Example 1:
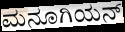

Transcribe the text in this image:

ಮನೂಗಿಯನ್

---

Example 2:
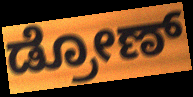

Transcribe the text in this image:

ಡ್ರೋಣ್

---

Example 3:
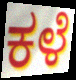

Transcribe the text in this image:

ಕಳೆ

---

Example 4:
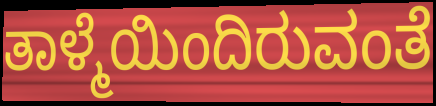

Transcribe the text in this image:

ತಾಳ್ಮೆಯಿಂದಿರುವಂತೆ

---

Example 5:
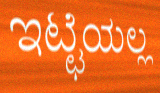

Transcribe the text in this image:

ಇಟ್ಟೆಯಲ್ಲ